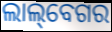
ଲାଲ୍‌ବେଗର